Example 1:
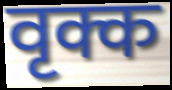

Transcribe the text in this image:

वृक्क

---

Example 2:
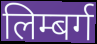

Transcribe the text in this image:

लिम्बर्ग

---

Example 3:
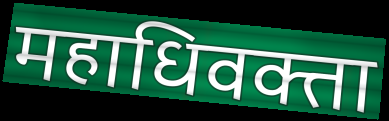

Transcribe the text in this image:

महाधिवक्ता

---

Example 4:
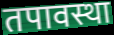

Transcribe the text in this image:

तपावस्था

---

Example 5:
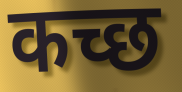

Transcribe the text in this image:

कच्छ